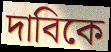
দাবিকে